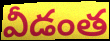
వీడంత